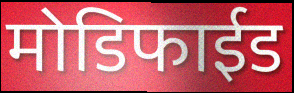
मोडिफाईड